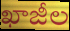
ఖాజీల